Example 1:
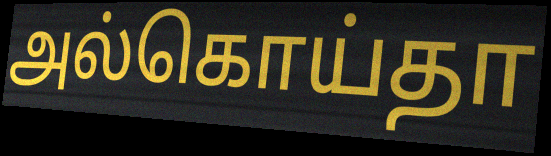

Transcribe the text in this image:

அல்கொய்தா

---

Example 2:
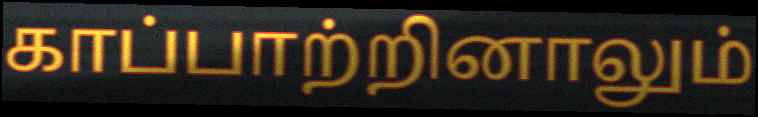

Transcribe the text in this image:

காப்பாற்றினாலும்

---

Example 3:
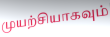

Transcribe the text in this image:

முயற்சியாகவும்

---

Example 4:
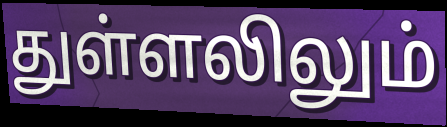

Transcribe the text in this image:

துள்ளலிலும்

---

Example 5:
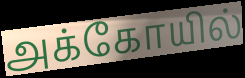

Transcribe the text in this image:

அக்கோயில்